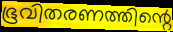
ഭൂവിതരണത്തിന്റെ